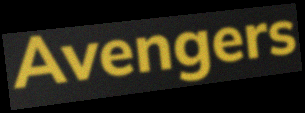
Avengers